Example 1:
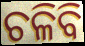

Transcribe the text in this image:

ଚଳିବି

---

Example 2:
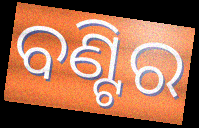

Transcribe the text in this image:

ବଣ୍ଟିର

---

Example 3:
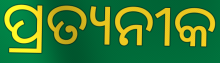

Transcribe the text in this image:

ପ୍ରତ୍ୟନୀକ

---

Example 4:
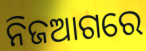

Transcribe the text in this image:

ନିଜଆଗରେ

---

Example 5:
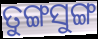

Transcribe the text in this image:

ତୁଙ୍ଗସୁଙ୍ଗ